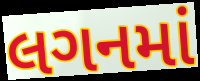
લગનમાં